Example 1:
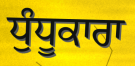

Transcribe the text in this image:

ਧੁੰਧੂਕਾਰਾ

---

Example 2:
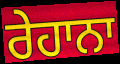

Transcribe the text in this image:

ਰੇਹਾਨਾ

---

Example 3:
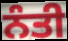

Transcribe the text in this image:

ਨੰਤੀ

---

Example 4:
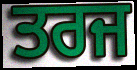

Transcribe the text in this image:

ਤਰਜ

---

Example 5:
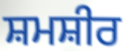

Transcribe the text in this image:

ਸ਼ਮਸ਼ੀਰ